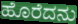
ಹೊರೆದನು